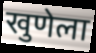
खुणेला